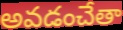
అవడంచేతా